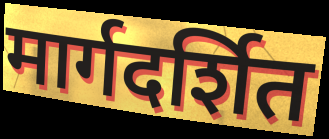
मार्गदर्शित